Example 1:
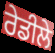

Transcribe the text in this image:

ਰੇਡੀਲੇ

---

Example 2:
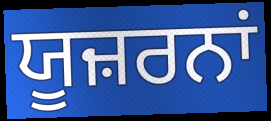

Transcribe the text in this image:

ਯੂਜ਼ਰਨਾਂ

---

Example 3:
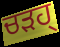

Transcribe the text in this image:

ਚੜਹ੍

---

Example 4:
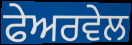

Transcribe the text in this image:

ਫੇਅਰਵੇਲ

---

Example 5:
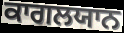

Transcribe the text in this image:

ਕਾਗਲਯਾਨ